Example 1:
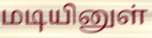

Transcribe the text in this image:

மடியினுள்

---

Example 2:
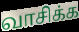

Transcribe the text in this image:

வாசிக்க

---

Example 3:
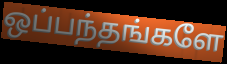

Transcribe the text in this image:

ஒப்பந்தங்களே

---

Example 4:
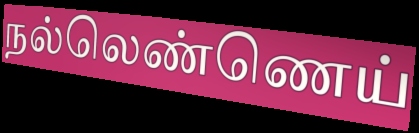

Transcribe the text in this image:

நல்லெண்ணெய்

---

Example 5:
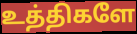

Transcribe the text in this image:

உத்திகளே